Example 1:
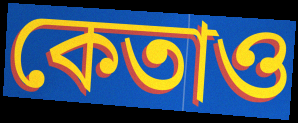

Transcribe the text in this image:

কেতাও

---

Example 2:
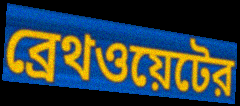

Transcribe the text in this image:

ব্রেথওয়েটের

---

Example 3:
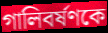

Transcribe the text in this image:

গালিবর্ষণকে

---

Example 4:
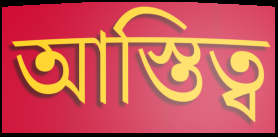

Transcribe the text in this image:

আস্তিত্ব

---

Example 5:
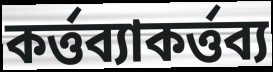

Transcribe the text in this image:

কর্ত্তব্যাকর্ত্তব্য